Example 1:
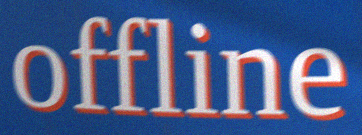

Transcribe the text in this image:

offline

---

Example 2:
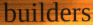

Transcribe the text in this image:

builders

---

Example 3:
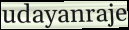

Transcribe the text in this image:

udayanraje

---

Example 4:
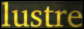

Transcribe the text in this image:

lustre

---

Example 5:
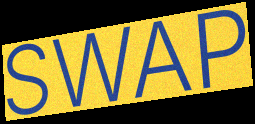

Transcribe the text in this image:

SWAP